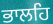
ਭਾਲਹਿ